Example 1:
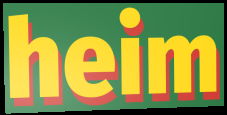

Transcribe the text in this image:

heim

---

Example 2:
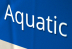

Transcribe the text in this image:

Aquatic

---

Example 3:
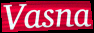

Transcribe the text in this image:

Vasna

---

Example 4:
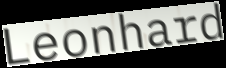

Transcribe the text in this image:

Leonhard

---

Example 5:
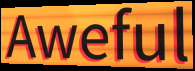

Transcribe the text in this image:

Aweful